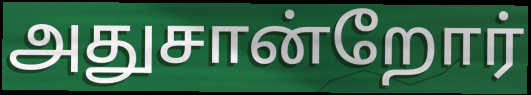
அதுசான்றோர்